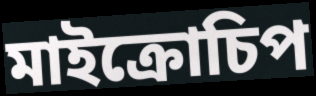
মাইক্রোচিপ